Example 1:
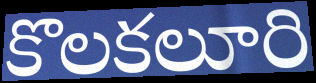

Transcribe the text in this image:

కొలకలూరి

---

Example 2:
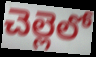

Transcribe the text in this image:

చెల్లెలో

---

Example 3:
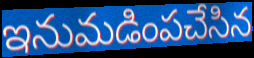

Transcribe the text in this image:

ఇనుమడింపచేసిన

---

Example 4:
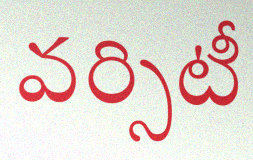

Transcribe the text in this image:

వర్సిటీ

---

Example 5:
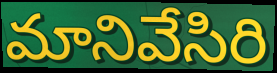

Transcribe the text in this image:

మానివేసిరి